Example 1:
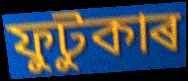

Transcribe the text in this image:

ফুটুকাৰ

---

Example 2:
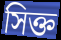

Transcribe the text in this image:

সিক্ত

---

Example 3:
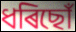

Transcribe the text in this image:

ধৰিছোঁ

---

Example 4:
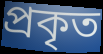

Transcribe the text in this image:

প্ৰকৃত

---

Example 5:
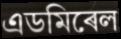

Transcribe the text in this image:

এডমিৰেল